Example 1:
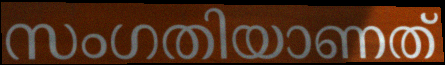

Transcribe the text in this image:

സംഗതിയാണത്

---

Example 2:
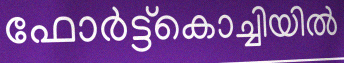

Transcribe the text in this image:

ഫോർട്ട്കൊച്ചിയിൽ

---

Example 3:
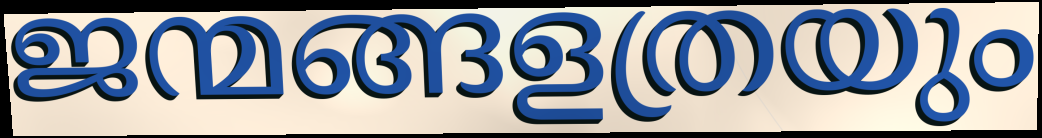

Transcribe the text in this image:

ജന്മങ്ങളത്രയും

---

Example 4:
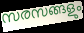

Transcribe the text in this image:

സരസങ്ങളും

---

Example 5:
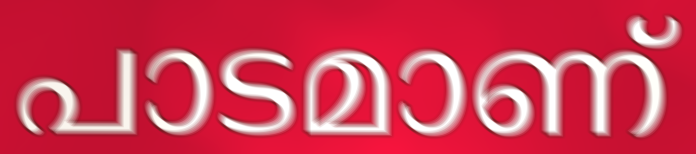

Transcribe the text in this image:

പാടമാണ്